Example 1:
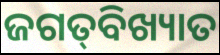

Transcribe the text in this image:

ଜଗତ୍‌ବିଖ୍ୟାତ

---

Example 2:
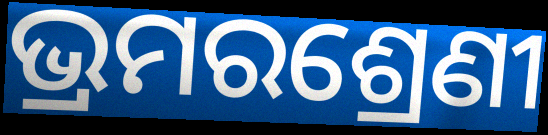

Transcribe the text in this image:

ଭ୍ରମରଶ୍ରେଣୀ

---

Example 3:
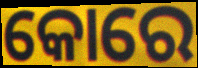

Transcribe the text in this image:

କୋରେ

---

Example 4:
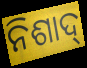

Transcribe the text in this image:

ନିଶାଦ୍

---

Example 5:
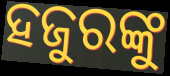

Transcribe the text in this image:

ହଜୁରଙ୍କୁ